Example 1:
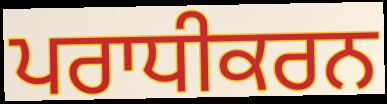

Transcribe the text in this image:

ਪਰਾਧੀਕਰਨ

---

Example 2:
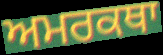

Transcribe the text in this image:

ਅਮਰਕਥਾ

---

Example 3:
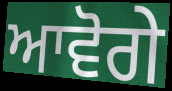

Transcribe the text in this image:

ਆਵੋਗੇ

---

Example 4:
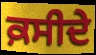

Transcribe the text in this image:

ਕ਼ਸੀਦੇ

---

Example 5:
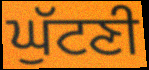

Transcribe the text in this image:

ਘੁੱਟਣੀ